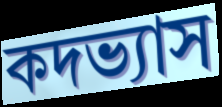
কদভ্যাস